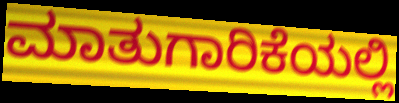
ಮಾತುಗಾರಿಕೆಯಲ್ಲಿ